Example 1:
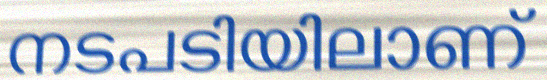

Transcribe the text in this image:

നടപടിയിലാണ്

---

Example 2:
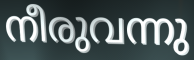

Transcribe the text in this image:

നീരുവന്നു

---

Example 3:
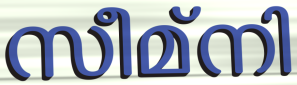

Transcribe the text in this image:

സീമ്നി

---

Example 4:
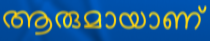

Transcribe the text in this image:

ആരുമായാണ്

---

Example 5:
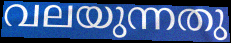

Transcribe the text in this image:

വലയുന്നതു